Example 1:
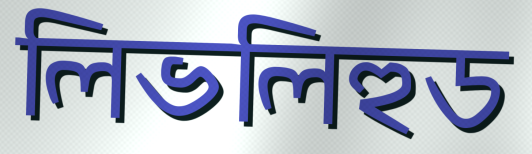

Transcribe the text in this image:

লিভলিহুড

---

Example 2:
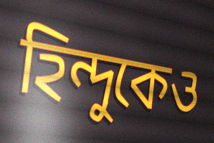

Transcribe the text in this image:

হিন্দুকেও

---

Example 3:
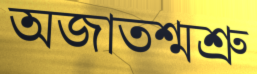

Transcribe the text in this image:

অজাতশ্মশ্রু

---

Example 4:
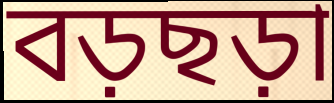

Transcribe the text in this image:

বড়ছড়া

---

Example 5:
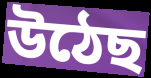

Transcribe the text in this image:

উঠেছ